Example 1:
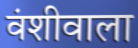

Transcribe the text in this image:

वंशीवाला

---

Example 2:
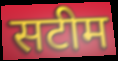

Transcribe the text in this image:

सटीम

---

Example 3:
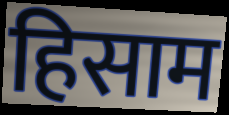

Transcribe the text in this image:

हिसाम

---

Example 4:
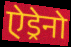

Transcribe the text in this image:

ऐड्रेनो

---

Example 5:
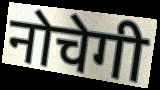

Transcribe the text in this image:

नोचेगी